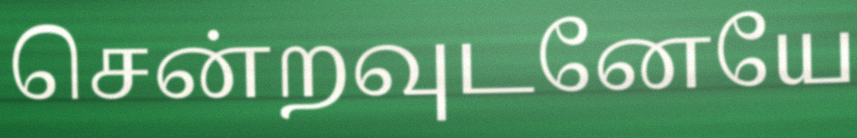
சென்றவுடனேயே